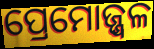
ପ୍ରେମୋଜ୍ଜ୍ୱଳ